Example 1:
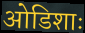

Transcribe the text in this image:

ओडिशाः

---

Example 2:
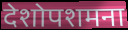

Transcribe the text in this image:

देशोपशमना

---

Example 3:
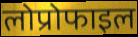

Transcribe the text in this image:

लोप्रोफाइल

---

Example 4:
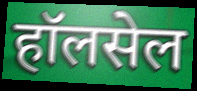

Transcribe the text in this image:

हॉलसेल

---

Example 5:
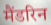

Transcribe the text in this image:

मैंडरिन